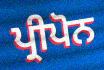
ਪ੍ਰੀਪੋਨ